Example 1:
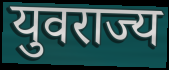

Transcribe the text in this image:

युवराज्य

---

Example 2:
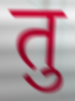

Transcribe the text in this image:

तु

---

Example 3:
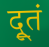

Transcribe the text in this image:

दू॒तं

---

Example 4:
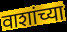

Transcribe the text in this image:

वाशांच्या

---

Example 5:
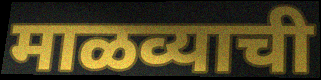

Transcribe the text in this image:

माळव्याची